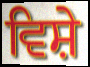
ਵਿਸ਼ੇ